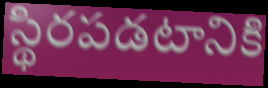
స్థిరపడటానికి